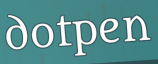
dotpen